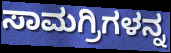
ಸಾಮಗ್ರಿಗಳನ್ನ